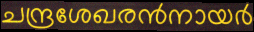
ചന്ദ്രശേഖരൻനായർ